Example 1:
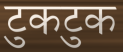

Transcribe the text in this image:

टुकटुक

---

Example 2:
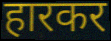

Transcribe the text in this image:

हारकर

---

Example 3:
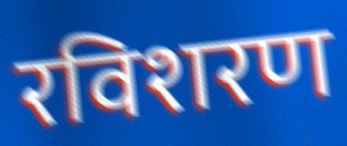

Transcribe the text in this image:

रविशरण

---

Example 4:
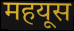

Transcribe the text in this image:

महयूस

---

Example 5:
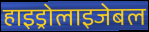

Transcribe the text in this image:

हाइड्रोलाइजेबल